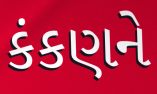
કંકણને